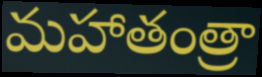
మహాతంత్రా